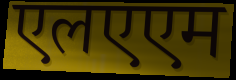
एलएएम